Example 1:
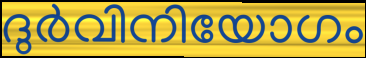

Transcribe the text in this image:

ദുർവിനിയോഗം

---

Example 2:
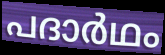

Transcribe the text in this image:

പദാർഥം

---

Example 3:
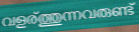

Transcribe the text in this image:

വളര്ത്തുന്നവരുണ്ട്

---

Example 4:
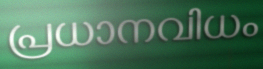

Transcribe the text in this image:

പ്രധാനവിധം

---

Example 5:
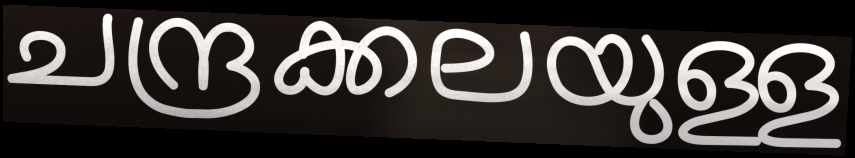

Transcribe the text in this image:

ചന്ദ്രക്കലയുള്ള